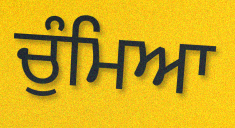
ਚੁੰਮਿਆ